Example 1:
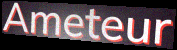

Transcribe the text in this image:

Ameteur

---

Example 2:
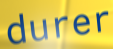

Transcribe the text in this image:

durer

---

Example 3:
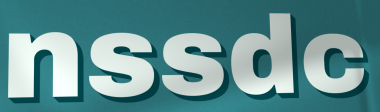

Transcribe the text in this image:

nssdc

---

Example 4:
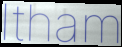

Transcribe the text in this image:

Itham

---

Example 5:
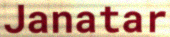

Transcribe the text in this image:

Janatar